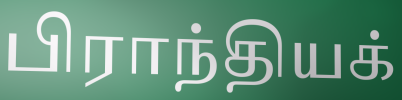
பிராந்தியக்